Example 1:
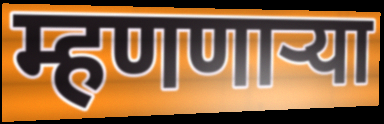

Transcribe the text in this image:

म्हणणाऱ्या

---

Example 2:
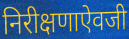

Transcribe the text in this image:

निरीक्षणाऐवजी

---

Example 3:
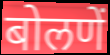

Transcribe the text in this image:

बोलणें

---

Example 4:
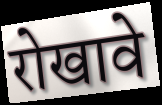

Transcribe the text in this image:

रोखावे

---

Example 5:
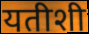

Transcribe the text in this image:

यतीशी